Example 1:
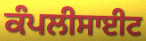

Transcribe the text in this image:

ਕੰਪਲੀਸਾਈਟ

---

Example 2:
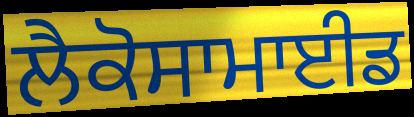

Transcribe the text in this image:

ਲੈਕੋਸਾਮਾਈਡ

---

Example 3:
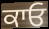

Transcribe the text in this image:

ਕਾਓ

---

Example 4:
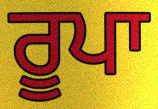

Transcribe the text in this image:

ਰੂਪਾ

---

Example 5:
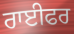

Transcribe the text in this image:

ਰਾਈਫਰ